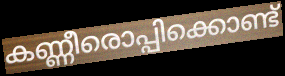
കണ്ണീരൊപ്പിക്കൊണ്ട്